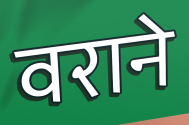
वराने